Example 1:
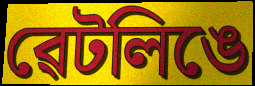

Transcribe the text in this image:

ৱেটলিঙে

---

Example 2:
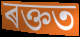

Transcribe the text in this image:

ৰক্তত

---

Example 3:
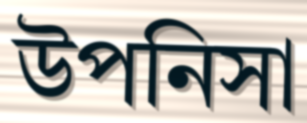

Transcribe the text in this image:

উপনিসা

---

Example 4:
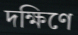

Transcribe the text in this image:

দক্ষিণে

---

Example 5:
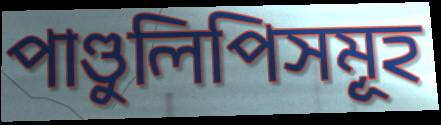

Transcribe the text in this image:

পাণ্ডুলিপিসমূহ